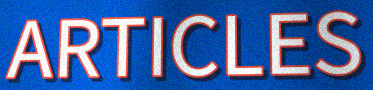
ARTICLES